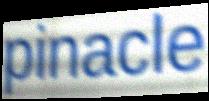
pinacle